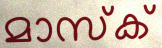
മാസ്ക്